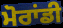
ਮੋਰਾਂਡੀ